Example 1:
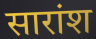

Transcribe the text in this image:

सारांश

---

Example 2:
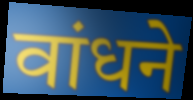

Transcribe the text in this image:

वांधने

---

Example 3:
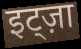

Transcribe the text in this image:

इट्ज़ा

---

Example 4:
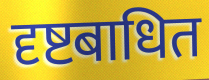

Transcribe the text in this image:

दृष्टबाधित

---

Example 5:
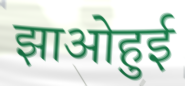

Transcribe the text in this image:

झाओहुई